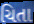
ચિતા